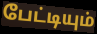
பேட்டியும்